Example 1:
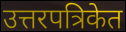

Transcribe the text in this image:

उत्तरपत्रिकेत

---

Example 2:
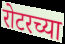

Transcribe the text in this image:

रोटरच्या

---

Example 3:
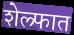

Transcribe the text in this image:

शेल्फात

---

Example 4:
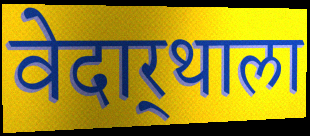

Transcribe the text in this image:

वेदार्थाला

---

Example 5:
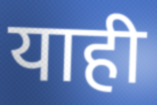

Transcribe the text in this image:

याही